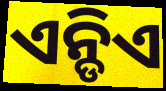
ଏନ୍ଡିଏ